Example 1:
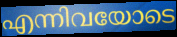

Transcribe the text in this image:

എന്നിവയോടെ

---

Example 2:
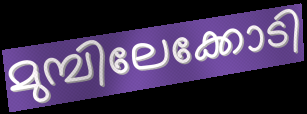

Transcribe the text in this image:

മുമ്പിലേക്കോടി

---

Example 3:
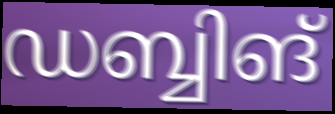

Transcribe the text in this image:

ഡബ്ബിങ്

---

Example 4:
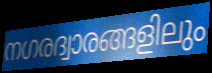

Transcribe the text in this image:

നഗരദ്വാരങ്ങളിലും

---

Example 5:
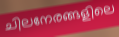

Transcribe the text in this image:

ചിലനേരങ്ങളിലെ